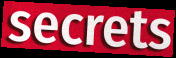
secrets